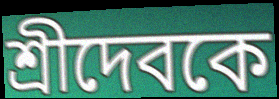
শ্রীদেবকে